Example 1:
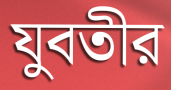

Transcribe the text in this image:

যুবতীর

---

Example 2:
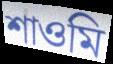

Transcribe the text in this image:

শাওমি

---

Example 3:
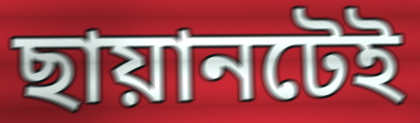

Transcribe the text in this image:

ছায়ানটেই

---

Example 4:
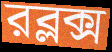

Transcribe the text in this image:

রব্লক্স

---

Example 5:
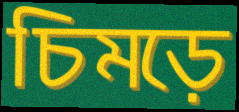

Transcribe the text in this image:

চিমড়ে